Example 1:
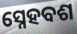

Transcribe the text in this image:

ସ୍ନେହବଶ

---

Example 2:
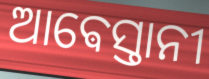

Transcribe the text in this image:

ଆଵେସ୍ତାନୀ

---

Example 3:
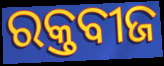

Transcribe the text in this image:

ରକ୍ତବୀଜ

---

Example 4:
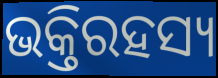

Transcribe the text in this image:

ଭକ୍ତିରହସ୍ୟ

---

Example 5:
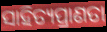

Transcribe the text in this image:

ସାହିତ୍ୟପ୍ରାଣତା